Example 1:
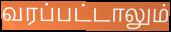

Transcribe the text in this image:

வரப்பட்டாலும்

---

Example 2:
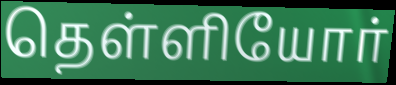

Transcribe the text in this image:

தெள்ளியோர்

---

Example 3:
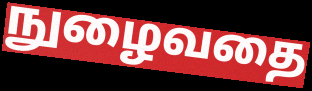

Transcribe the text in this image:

நுழைவதை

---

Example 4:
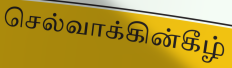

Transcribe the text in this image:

செல்வாக்கின்கீழ்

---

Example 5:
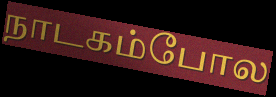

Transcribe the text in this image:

நாடகம்போல